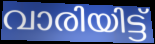
വാരിയിട്ട്